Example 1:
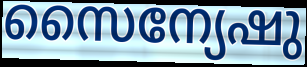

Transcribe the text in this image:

സൈന്യേഷു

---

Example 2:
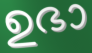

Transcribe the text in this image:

ഉഭാ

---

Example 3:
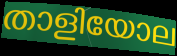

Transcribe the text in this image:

താളിയോല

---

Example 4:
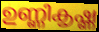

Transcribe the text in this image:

ഉണ്ണികൃഷ്ണ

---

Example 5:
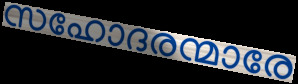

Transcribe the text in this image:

സഹോദരന്മാരേ